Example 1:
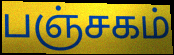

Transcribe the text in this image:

பஞ்சகம்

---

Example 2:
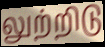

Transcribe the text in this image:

லுற்றிடு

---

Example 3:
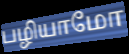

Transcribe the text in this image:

பழியாமோ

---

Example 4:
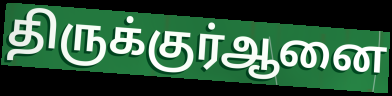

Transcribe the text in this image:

திருக்குர்ஆனை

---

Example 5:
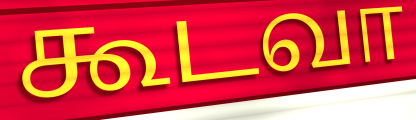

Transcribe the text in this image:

கூடவா